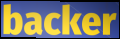
backer